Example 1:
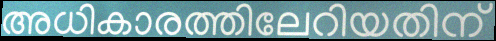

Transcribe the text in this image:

അധികാരത്തിലേറിയതിന്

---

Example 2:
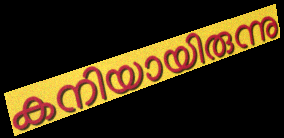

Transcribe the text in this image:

കനിയായിരുന്നു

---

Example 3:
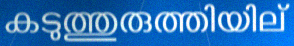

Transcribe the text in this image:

കടുത്തുരുത്തിയില്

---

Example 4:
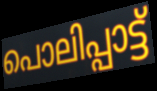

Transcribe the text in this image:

പൊലിപ്പാട്ട്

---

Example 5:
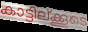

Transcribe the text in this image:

കാട്ടില്ക്കൂടെ